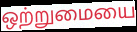
ஒற்றுமையை